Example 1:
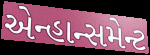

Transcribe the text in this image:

એન્હાન્સમેન્ટ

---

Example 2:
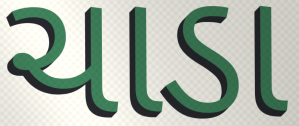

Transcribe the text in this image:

ચાડા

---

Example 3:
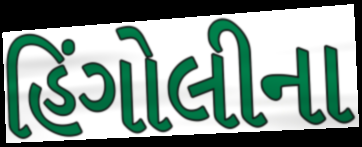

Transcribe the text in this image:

હિંગોલીના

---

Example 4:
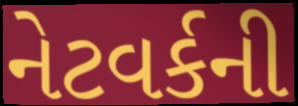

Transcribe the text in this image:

નેટવર્કની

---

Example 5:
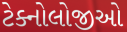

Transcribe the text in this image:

ટેક્નોલોજીઓ